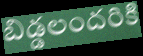
బిడ్డలందరికి